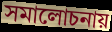
সমালোচনায়